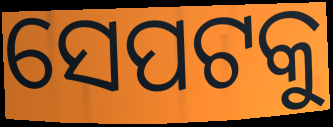
ସେପଟକୁ